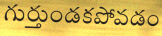
గుర్తుండకపోవడం